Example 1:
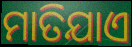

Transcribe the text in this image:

ମାତିଯାଏ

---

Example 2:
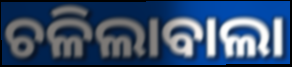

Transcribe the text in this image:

ଚଳିଲାବାଲା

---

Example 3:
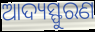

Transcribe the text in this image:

ଆଦ୍ୟସ୍ଫୁରଣ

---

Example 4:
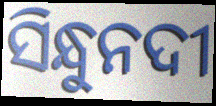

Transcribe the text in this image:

ସିନ୍ଧୁନଦୀ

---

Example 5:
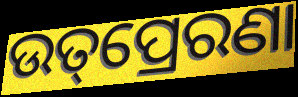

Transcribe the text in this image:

ଉତ୍‌ପ୍ରେରଣା